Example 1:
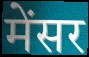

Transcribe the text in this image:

मेंसर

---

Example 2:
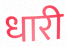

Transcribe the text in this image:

धारी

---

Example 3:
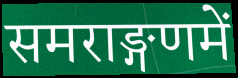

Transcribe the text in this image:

समराङ्गणमें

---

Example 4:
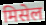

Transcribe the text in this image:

मिसेल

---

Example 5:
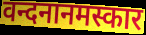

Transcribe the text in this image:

वन्दनानमस्कार